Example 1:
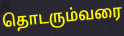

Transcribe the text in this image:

தொடரும்வரை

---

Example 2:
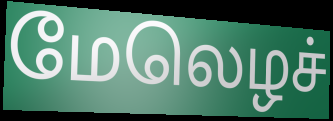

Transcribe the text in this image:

மேலெழச்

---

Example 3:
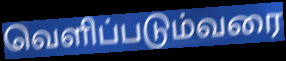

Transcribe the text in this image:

வெளிப்படும்வரை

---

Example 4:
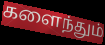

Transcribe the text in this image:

களைந்தும்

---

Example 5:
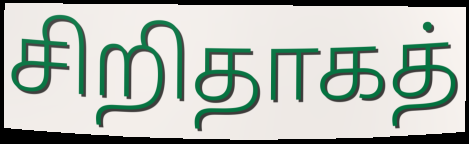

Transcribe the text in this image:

சிறிதாகத்